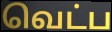
வெட்ப